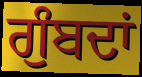
ਗੁੰਬਦਾਂ